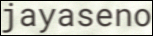
jayaseno